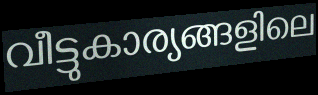
വീട്ടുകാര്യങ്ങളിലെ